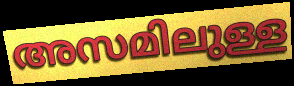
അസമിലുള്ള